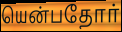
யென்பதோர்